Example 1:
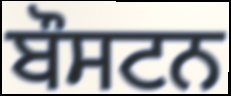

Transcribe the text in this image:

ਬੌਸਟਨ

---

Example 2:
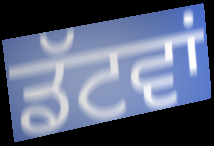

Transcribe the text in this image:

ਡੱਟਵਾਂ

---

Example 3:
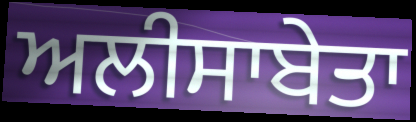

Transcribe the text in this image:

ਅਲੀਸਾਬੇਤਾ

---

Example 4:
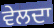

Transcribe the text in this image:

ਵੇਲਦਾ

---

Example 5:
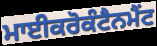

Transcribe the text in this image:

ਮਾਈਕਰੋਕੰਟੈਨਮੈਂਟ